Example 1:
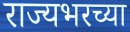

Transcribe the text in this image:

राज्यभरच्या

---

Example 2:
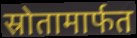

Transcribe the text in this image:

स्रोतामार्फत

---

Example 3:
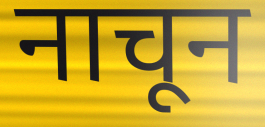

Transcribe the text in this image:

नाचून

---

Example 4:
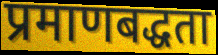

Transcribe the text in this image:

प्रमाणबद्धता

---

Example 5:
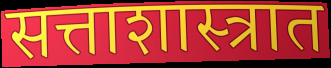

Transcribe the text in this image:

सत्ताशास्त्रात